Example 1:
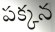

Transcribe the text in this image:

పక్కన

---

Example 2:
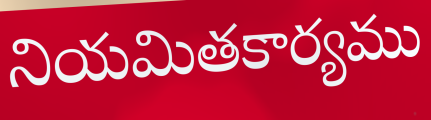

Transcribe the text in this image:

నియమితకార్యము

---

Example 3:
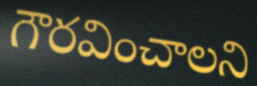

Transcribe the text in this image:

గౌరవించాలని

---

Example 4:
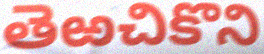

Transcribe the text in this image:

తెఱచికొని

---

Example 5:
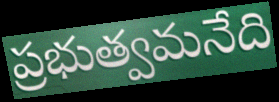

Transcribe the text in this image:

ప్రభుత్వమనేది